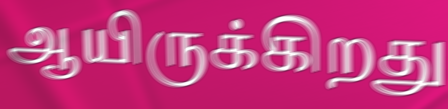
ஆயிருக்கிறது